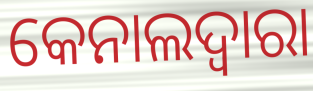
କେନାଲଦ୍ଵାରା